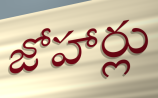
జోహార్లు